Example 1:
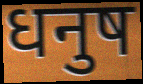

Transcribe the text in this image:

धनुष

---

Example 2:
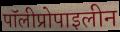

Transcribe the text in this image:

पॉलीप्रोपाइलीन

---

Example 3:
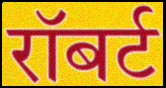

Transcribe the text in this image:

रॉबर्ट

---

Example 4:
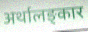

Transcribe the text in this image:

अर्थालङ्कार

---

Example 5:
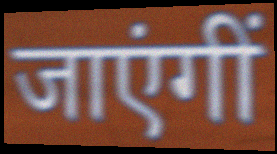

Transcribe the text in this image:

जाएंगीं